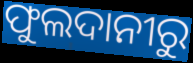
ଫୁଲଦାନୀରୁ